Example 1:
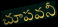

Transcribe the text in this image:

చూపవనీ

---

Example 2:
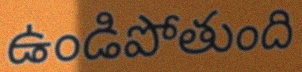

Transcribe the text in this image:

ఉండిపోతుంది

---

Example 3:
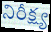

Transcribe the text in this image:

నిరీక్ష్య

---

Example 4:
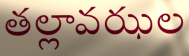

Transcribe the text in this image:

తల్లావఝల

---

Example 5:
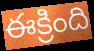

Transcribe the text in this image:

ఈక్రింది